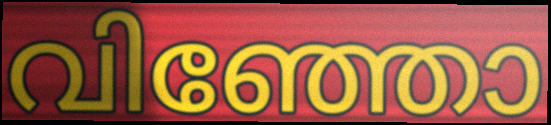
വിഞ്ഞോ